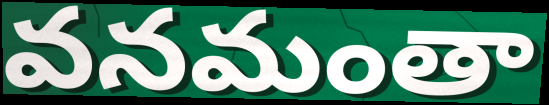
వనమంతా